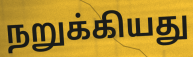
நறுக்கியது